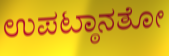
ಉಪಟ್ಠಾನತೋ